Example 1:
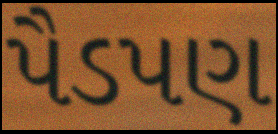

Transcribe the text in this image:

પૈડપણ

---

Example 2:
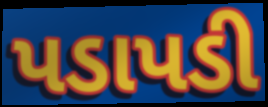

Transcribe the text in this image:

પડાપડી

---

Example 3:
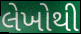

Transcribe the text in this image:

લેખોથી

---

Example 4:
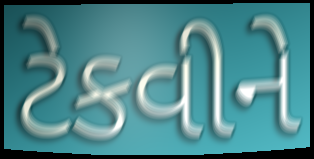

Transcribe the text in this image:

ટેકવીને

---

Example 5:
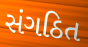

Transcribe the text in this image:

સંગઠિત